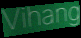
Vihang